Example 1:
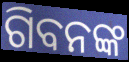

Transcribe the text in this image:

ଗିବନଙ୍କ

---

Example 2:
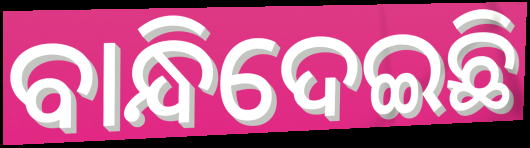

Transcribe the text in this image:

ବାନ୍ଧିଦେଇଛି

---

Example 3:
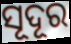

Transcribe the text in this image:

ସୂଦୂର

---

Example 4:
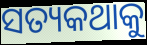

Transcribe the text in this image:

ସତ୍ୟକଥାକୁ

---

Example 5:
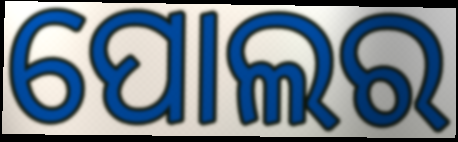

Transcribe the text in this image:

ପୋଲର